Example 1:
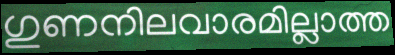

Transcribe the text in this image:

ഗുണനിലവാരമില്ലാത്ത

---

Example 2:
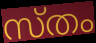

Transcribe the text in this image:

സ്തം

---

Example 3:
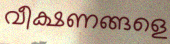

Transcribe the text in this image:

വീക്ഷണങ്ങളെ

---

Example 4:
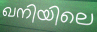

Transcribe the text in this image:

ഖനിയിലെ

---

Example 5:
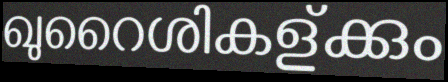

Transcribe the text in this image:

ഖുറൈശികള്ക്കും